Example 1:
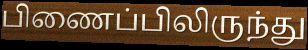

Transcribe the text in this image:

பிணைப்பிலிருந்து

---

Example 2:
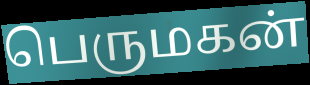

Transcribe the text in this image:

பெருமகன்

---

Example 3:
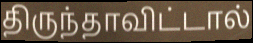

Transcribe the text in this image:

திருந்தாவிட்டால்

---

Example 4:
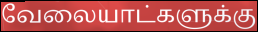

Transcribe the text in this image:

வேலையாட்களுக்கு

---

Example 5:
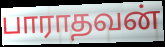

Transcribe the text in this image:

பாராதவன்